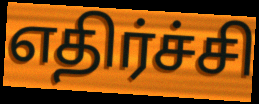
எதிர்ச்சி